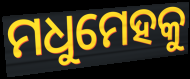
ମଧୁମେହକୁ